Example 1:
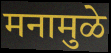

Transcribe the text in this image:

मनामुळे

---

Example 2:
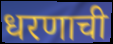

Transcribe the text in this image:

धरणाची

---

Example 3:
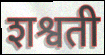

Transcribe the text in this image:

शश्वती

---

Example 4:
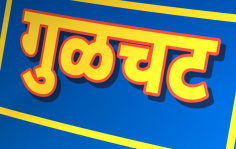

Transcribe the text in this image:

गुळचट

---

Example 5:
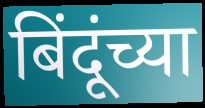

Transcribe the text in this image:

बिंदूंच्या